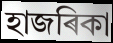
হাজৰিকা